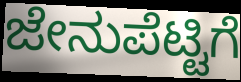
ಜೇನುಪೆಟ್ಟಿಗೆ